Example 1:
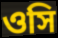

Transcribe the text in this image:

ওসি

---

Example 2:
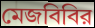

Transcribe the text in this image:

মেজবিবির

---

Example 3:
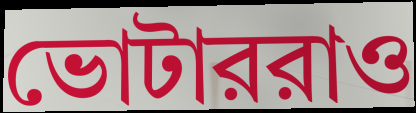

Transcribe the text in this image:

ভোটাররাও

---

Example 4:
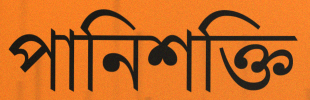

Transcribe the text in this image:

পানিশক্তি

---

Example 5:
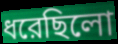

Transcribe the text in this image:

ধরেছিলো